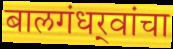
बालगंधर्वांचा